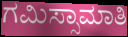
ಗಮಿಸ್ಸಾಮಾತಿ